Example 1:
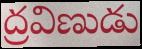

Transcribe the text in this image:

ద్రవిణుడు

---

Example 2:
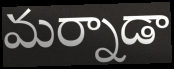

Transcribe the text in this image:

మర్నాడా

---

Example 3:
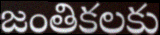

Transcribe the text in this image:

జంతికలకు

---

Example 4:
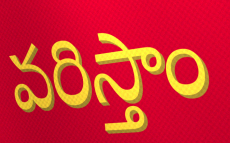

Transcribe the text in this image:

వరిస్తాం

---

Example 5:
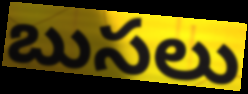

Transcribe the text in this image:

బుసలు